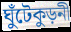
ঘুঁটেকুড়নী